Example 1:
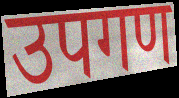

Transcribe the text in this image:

उपगण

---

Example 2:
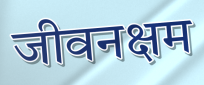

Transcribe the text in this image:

जीवनक्षम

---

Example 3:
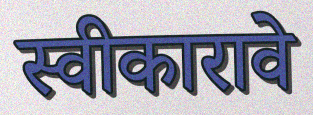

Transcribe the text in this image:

स्वीकारावे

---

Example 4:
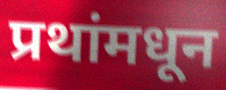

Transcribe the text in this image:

प्रथांमधून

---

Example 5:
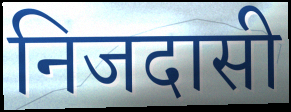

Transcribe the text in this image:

निजदासी